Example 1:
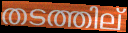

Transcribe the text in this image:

തടത്തില്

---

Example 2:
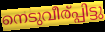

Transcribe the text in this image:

നെടുവീര്പ്പിട്ടു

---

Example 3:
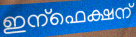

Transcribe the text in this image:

ഇന്ഫെക്ഷന്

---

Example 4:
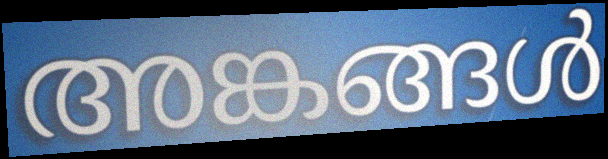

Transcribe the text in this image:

അങ്കങ്ങൾ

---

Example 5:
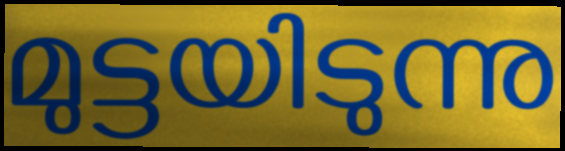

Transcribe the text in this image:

മുട്ടയിടുന്നു